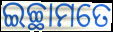
ଇଚ୍ଛାମତେ